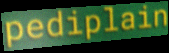
pediplain